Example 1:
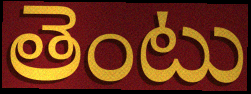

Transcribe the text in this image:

తెంటు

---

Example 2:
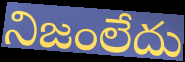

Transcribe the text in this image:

నిజంలేదు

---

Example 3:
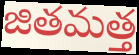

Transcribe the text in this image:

జితమత్త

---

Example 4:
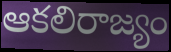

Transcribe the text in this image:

ఆకలిరాజ్యం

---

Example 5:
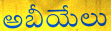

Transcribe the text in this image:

అబీయేలు